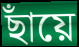
ছাঁয়ে